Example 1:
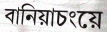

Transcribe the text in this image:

বানিয়াচংয়ে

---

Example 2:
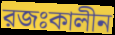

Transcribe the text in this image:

রজঃকালীন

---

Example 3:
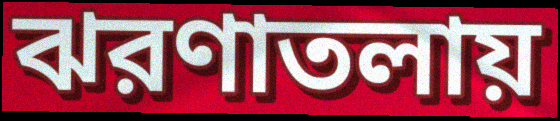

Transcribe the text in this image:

ঝরণাতলায়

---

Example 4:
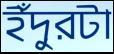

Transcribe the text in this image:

ইঁদুরটা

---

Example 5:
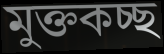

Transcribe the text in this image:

মুক্তকচ্ছ